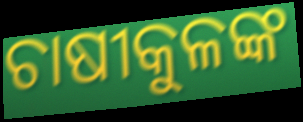
ଚାଷୀକୁଳଙ୍କ